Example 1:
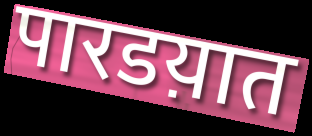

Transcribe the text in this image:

पारडय़ात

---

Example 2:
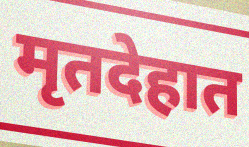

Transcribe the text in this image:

मृतदेहात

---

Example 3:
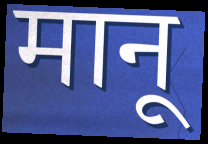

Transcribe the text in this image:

मानू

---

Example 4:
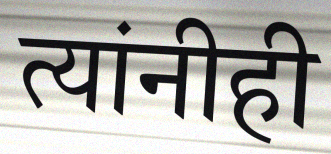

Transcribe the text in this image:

त्यांनीही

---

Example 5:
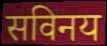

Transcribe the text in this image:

सविनय